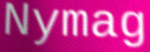
Nymag